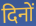
दिनों